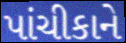
પાંચીકાને